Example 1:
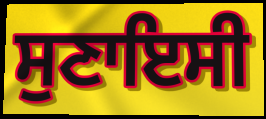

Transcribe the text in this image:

ਸੁਣਾਇਸੀ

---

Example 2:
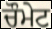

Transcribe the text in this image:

ਚੌਮੇਟ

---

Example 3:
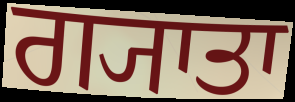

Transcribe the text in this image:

ਗ੍ਯਾਤਾ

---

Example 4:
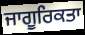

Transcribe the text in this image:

ਜਾਗੂਰਿਕਤਾ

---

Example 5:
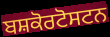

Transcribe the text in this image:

ਬਸ਼ਕੋਰਟੋਸਟਨ